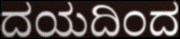
ದಯದಿಂದ